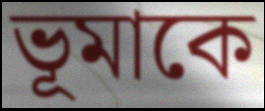
ভূমাকে